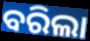
ବରିଲା